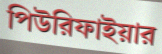
পিউরিফাইয়ার